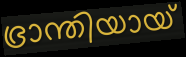
ഭ്രാന്തിയായ്